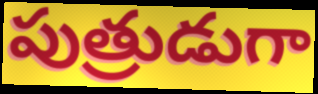
పుత్రుడుగా